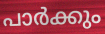
പാർക്കും